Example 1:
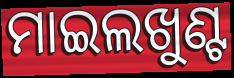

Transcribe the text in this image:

ମାଇଲଖୁଣ୍ଟ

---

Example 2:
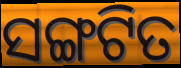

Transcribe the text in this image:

ସଙ୍ଗଟିତ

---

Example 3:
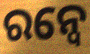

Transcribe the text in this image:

ରନ୍ୱେ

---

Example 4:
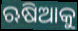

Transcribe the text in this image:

ଋଷିଆକୁ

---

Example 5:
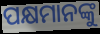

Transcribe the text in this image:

ପକ୍ଷମାନଙ୍କୁ